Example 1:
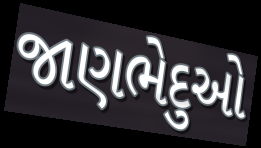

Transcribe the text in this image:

જાણભેદુઓ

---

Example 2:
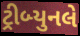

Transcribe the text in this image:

ટ્રીબ્યુનલે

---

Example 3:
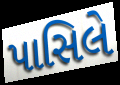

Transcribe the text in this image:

પાસિલે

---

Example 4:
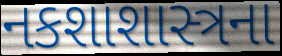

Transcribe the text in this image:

નકશાશાસ્ત્રના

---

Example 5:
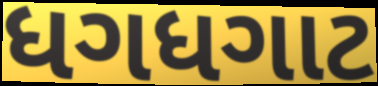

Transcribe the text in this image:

ધગધગાટ